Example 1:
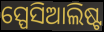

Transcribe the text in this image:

ସ୍ପେସିଆଲିଷ୍ଟ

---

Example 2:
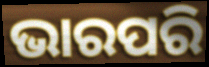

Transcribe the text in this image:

ଭାରପରି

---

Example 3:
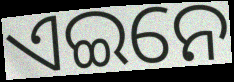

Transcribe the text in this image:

ଏଇନେ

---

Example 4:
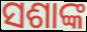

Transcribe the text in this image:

ସଶାଙ୍କ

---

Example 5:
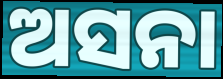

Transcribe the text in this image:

ଅସନା